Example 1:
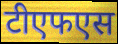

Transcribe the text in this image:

टीएफएस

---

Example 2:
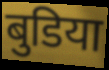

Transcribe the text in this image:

बुडिया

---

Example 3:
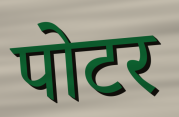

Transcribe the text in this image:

पोटर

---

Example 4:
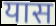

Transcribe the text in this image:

यास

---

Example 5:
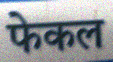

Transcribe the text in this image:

फेकल